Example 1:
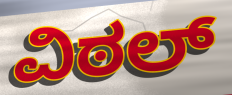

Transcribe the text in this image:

ವಿಠಲ್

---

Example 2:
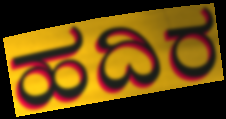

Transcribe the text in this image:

ಹದಿರ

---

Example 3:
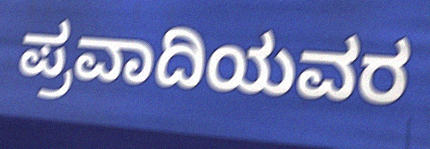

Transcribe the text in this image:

ಪ್ರವಾದಿಯವರ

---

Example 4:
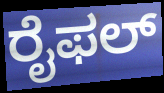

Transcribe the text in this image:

ರೈಫಲ್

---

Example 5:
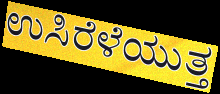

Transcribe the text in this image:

ಉಸಿರೆಳೆಯುತ್ತ